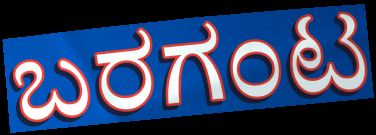
ಬರಗಂಟ